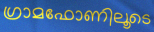
ഗ്രാമഫോണിലൂടെ